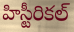
హిస్టీరికల్